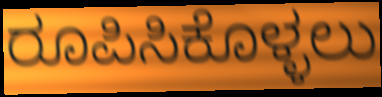
ರೂಪಿಸಿಕೊಳ್ಳಲು